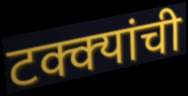
टक्क्यांची